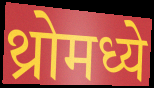
थ्रोमध्ये